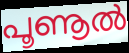
പൂണൂൽ